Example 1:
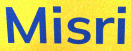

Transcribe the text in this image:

Misri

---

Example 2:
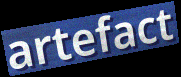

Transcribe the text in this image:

artefact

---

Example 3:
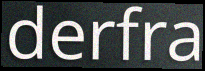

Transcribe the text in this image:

derfra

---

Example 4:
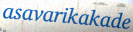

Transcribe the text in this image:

asavarikakade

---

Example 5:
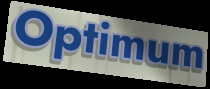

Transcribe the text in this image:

Optimum